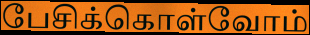
பேசிக்கொள்வோம்